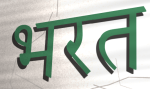
भरत